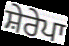
ਸ਼ੇਰੇਪਾ